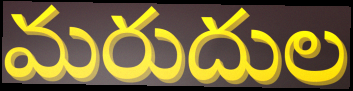
మరుదుల